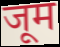
जूम